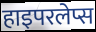
हाइपरलेप्स